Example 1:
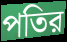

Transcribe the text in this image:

পতির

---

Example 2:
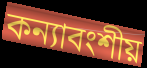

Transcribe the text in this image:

কন্যাবংশীয়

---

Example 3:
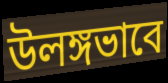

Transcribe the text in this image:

উলঙ্গভাবে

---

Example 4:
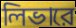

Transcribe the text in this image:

লিভারে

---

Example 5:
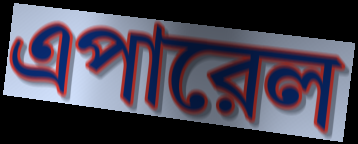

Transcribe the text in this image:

এপারেল